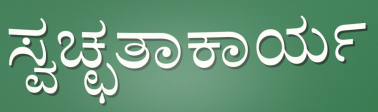
ಸ್ವಚ್ಛತಾಕಾರ್ಯ